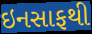
ઇનસાફથી